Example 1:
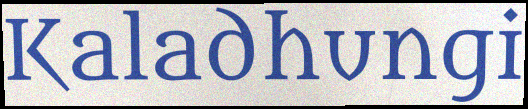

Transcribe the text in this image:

Kaladhungi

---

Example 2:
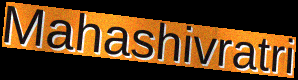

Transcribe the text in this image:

Mahashivratri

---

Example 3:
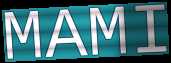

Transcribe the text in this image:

MAMI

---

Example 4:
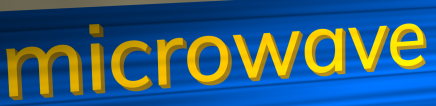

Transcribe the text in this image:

microwave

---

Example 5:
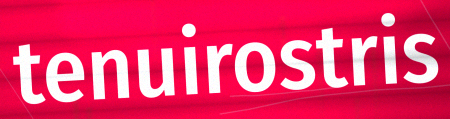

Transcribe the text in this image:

tenuirostris